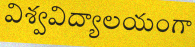
విశ్వవిద్యాలయంగా